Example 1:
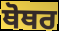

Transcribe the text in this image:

ਥੋਥਰ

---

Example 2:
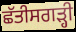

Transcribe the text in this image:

ਛੱਤੀਸਗੜ੍ਹੀ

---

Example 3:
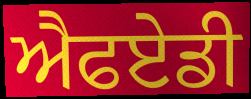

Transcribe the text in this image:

ਐਫਏਡੀ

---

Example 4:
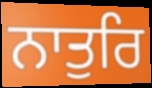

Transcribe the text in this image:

ਨਾਤੁਰਿ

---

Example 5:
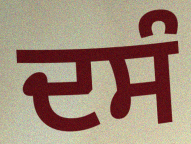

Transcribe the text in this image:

ਦਸੰ